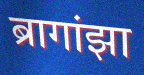
ब्रागांझा